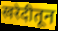
खरेदीतून